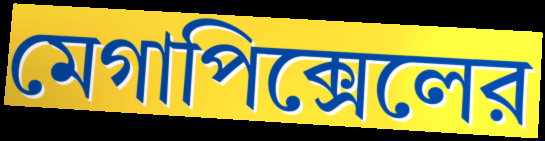
মেগাপিক্সেলের